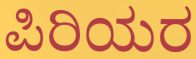
ಪಿರಿಯರ